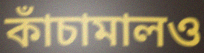
কাঁচামালও